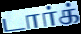
டார்க்